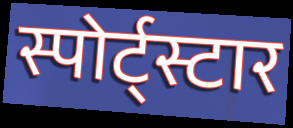
स्पोर्ट्स्टार